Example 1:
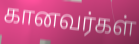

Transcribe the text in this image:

கானவர்கள்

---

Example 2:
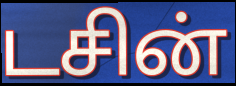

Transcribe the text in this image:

டசின்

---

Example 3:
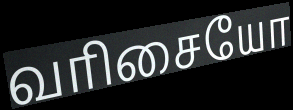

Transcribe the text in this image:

வரிசையோ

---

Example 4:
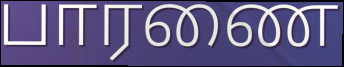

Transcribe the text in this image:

பாரணை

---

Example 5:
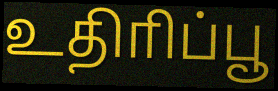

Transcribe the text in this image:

உதிரிப்பூ